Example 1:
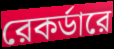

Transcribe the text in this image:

রেকর্ডারে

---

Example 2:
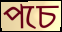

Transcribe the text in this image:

পচে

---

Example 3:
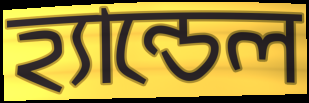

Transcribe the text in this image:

হ্যান্ডেল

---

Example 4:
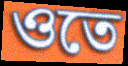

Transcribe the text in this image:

ওতে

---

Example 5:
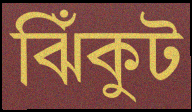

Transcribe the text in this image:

ঝিঁকুট